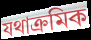
যথাক্ৰমিক